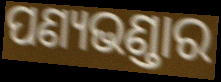
ପଣ୍ୟଭଣ୍ଡାର